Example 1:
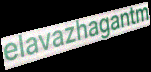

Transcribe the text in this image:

elavazhagantm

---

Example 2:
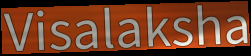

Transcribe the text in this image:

Visalaksha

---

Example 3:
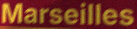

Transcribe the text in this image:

Marseilles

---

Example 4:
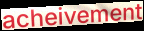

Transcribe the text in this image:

acheivement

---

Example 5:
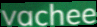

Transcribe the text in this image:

vachee